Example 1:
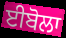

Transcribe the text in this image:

ਈਬੋਲਾ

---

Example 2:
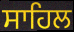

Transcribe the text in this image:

ਸਾਹਿਲ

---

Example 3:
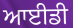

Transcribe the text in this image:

ਆਈਡੀ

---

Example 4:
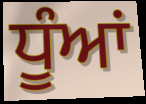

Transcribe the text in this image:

ਧੂੰਆਂ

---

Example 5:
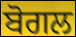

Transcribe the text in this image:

ਬੋਗਲ